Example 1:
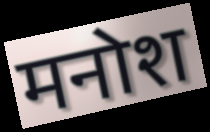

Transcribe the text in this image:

मनोश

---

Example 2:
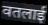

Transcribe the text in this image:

वतलाई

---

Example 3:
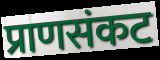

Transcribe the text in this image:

प्राणसंकट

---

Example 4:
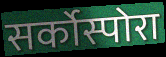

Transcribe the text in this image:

सर्कोस्पोरा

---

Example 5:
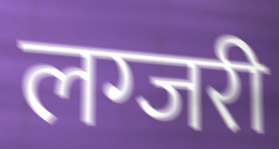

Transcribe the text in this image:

लग्‍जरी